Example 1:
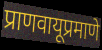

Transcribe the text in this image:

प्राणवायूप्रमाणे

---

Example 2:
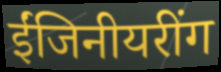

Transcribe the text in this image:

ईंजिनीयरींग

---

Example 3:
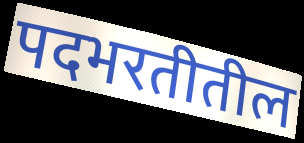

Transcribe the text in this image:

पदभरतीतील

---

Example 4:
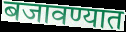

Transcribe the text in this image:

बजावण्यात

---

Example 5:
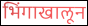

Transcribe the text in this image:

भिंगाखालून